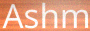
Ashm